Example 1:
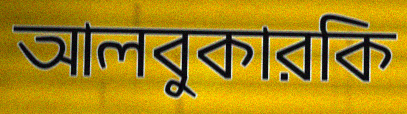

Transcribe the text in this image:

আলবুকারকি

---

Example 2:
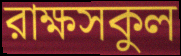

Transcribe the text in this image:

রাক্ষসকুল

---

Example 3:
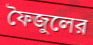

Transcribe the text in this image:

ফৈজুলের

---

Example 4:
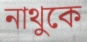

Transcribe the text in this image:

নাথুকে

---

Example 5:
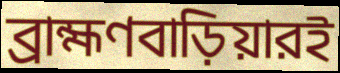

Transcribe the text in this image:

ব্রাহ্মণবাড়িয়ারই